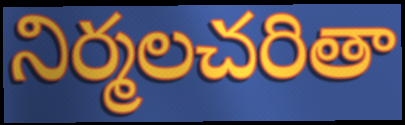
నిర్మలచరితా